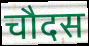
चौदस